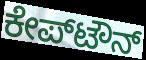
ಕೇಪ್‌ಟೌನ್